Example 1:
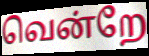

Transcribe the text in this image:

வென்றே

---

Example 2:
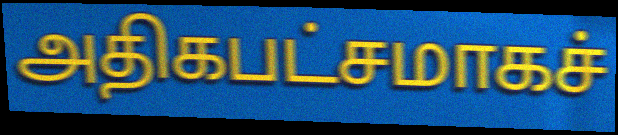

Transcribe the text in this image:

அதிகபட்சமாகச்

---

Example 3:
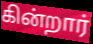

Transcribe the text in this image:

கின்றார்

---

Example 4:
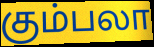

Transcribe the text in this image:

கும்பலா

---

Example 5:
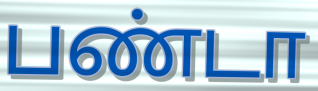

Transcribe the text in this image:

பண்டா